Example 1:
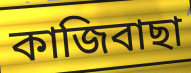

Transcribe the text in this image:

কাজিবাছা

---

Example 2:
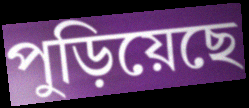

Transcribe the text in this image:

পুড়িয়েছে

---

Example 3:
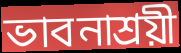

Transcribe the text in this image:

ভাবনাশ্রয়ী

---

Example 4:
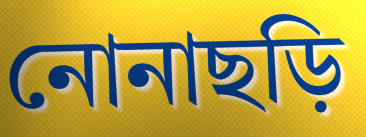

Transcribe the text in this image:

নোনাছড়ি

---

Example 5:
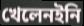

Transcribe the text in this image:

খেলেনইনি